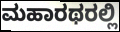
ಮಹಾರಥರಲ್ಲಿ